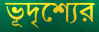
ভূদৃশ্যের